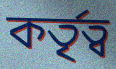
কৰ্তৃত্ব